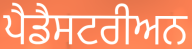
ਪੈਡੈਸਟਰੀਅਨ